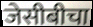
जेसीबीचा